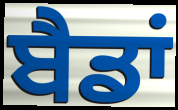
ਬੈਡਾਂ